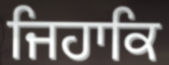
ਜਿਹਾਕਿ